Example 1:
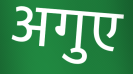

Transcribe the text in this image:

अगुए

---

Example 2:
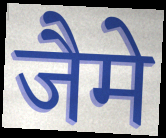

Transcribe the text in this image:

जैमे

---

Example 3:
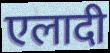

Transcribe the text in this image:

एलादी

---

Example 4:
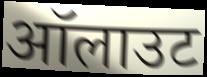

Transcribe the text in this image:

ऑलाउट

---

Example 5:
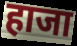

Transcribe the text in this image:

हाजा